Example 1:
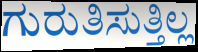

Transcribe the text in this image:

ಗುರುತಿಸುತ್ತಿಲ್ಲ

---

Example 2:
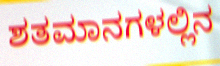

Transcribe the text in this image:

ಶತಮಾನಗಳಲ್ಲಿನ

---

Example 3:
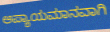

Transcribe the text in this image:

ಅಪ್ಯಾಯಮಾನವಾಗಿ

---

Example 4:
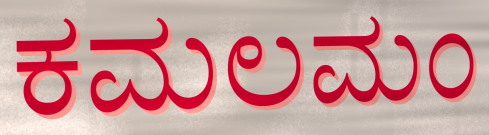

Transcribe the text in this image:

ಕಮಲಮಂ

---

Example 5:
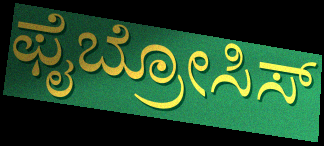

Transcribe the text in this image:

ಫೈಬ್ರೋಸಿಸ್